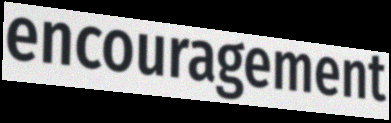
encouragement